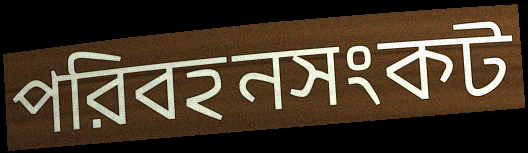
পরিবহনসংকট